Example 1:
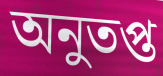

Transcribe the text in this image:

অনুতপ্ত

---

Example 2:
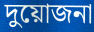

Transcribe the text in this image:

দুয়োজনা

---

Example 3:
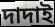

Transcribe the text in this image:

দাদাই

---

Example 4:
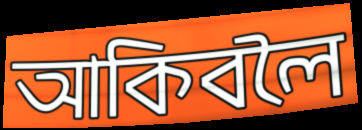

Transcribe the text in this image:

আকিবলৈ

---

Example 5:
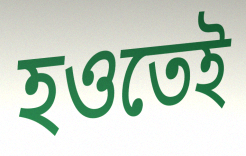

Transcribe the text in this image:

হওতেই